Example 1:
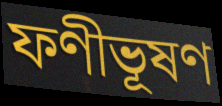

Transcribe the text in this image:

ফণীভূষণ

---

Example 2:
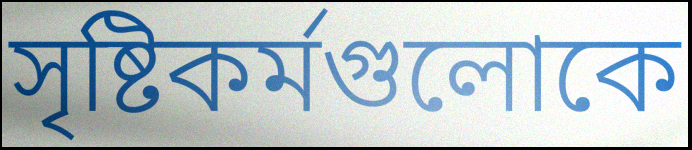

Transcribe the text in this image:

সৃষ্টিকর্মগুলোকে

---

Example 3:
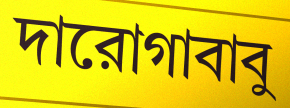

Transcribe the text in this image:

দারোগাবাবু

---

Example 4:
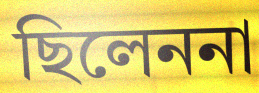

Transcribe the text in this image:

ছিলেননা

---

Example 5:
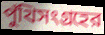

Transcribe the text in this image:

পুঁথিসংগ্রহের